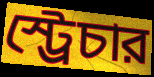
স্ট্রেচার